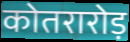
कोतरारोड़